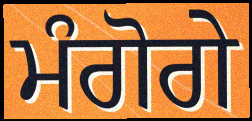
ਮੰਗੋਗੇ